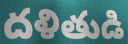
దళితుడి